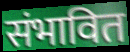
संभावित